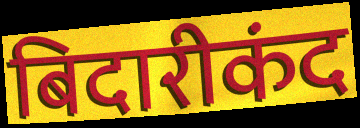
बिदारीकंद